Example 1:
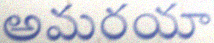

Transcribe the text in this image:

అమరయా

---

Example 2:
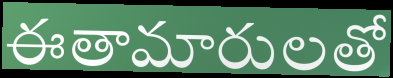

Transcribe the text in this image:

ఈతామారులతో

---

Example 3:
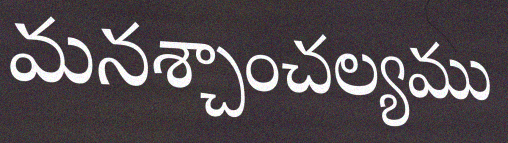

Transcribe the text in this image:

మనశ్చాంచల్యము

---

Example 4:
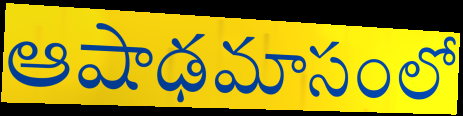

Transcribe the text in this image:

ఆషాఢమాసంలో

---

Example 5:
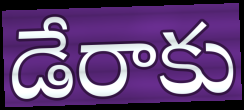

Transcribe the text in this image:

డేరాకు